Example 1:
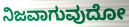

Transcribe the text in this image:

ನಿಜವಾಗುವುದೋ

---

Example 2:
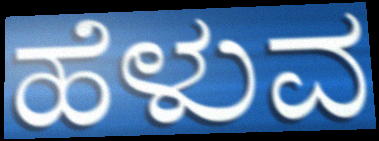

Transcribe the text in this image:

ಹೆಳುವ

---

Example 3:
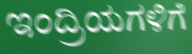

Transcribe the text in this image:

ಇಂದ್ರಿಯಗಳಿಗೆ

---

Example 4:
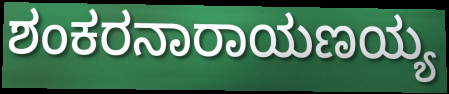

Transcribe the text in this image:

ಶಂಕರನಾರಾಯಣಯ್ಯ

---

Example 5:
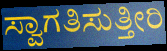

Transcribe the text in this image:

ಸ್ವಾಗತಿಸುತ್ತೀರಿ